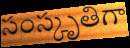
సంస్కృతిగా